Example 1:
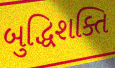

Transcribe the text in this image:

બુદ્ધિશક્તિ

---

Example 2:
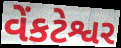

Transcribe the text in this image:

વેંકટેશ્વર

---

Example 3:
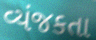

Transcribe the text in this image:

વ્યંજકતા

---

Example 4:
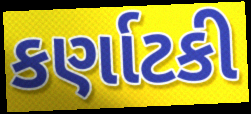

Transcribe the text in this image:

કર્ણાટકી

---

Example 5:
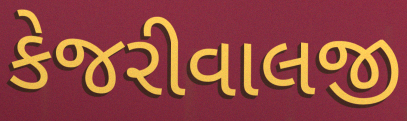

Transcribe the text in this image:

કેજરીવાલજી